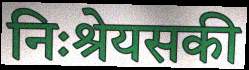
निःश्रेयसकी